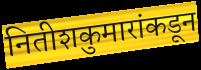
नितीशकुमारांकडून